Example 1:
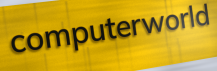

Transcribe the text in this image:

computerworld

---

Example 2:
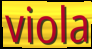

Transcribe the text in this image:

viola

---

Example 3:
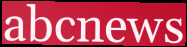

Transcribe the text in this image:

abcnews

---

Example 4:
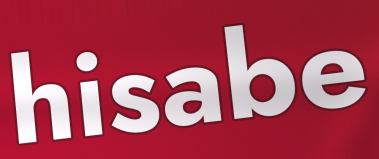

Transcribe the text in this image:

hisabe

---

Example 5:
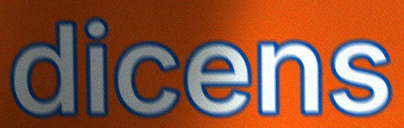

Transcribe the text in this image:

dicens